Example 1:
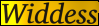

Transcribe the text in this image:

Widdess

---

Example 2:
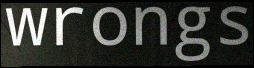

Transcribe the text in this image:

wrongs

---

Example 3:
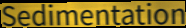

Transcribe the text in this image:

Sedimentation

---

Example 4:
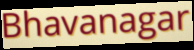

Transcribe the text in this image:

Bhavanagar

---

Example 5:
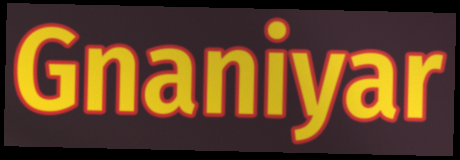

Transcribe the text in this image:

Gnaniyar